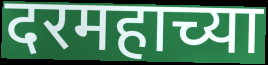
दरमहाच्या